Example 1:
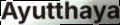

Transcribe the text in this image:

Ayutthaya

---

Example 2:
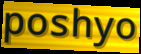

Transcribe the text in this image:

poshyo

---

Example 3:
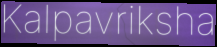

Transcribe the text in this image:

Kalpavriksha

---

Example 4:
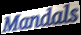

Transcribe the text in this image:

Mandals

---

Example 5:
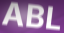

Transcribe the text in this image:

ABL